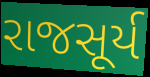
રાજસૂર્ય